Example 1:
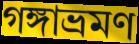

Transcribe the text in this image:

গঙ্গাভ্রমণ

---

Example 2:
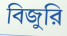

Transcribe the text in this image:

বিজুরি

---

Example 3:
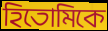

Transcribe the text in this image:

হিতোমিকে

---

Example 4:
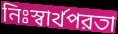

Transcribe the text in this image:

নিঃস্বার্থপরতা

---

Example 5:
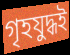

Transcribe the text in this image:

গৃহযুদ্ধই